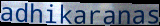
adhikaranas